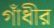
গাঁধীর